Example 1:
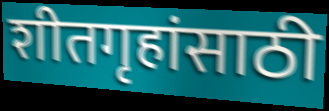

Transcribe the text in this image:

शीतगृहांसाठी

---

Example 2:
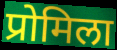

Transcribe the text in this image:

प्रोमिला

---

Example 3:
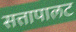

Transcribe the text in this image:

सत्तापालट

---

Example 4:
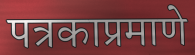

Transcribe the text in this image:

पत्रकाप्रमाणे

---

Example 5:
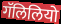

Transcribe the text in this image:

गॅलिलियो